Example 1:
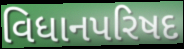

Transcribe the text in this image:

વિધાનપરિષદ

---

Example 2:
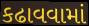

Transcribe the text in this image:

કઢાવવામાં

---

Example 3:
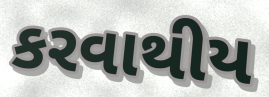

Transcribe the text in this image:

કરવાથીય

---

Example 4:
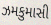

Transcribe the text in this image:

ઝમકુમાસી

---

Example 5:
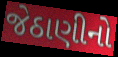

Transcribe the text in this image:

જેઠાણીનો